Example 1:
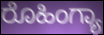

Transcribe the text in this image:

ರೊಹಿಂಗ್ಯಾ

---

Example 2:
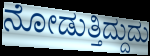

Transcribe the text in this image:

ನೋಡುತ್ತಿದ್ದುದು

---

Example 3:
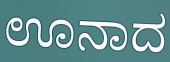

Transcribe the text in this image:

ಊನಾದ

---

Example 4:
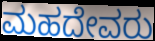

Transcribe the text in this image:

ಮಹದೇವರು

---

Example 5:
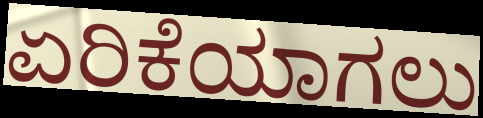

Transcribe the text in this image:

ಏರಿಕೆಯಾಗಲು